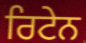
ਰਿਟੇਨ